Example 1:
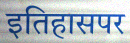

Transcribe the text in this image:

इतिहासपर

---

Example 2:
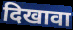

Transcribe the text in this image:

दिखावा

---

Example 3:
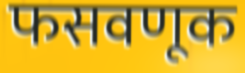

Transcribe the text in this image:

फसवणूक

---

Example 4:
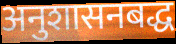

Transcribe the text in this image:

अनुशासनबद्ध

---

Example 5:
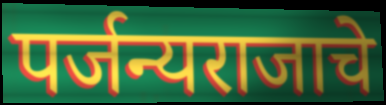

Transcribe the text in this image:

पर्जन्यराजाचे